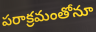
పరాక్రమంతోనూ